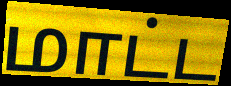
மாட்ட